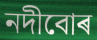
নদীবোৰ